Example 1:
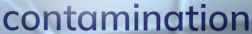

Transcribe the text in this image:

contamination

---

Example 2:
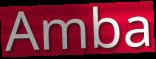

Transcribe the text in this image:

Amba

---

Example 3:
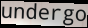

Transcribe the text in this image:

undergo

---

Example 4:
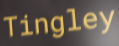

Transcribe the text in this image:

Tingley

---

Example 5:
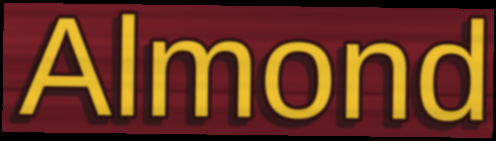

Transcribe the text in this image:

Almond